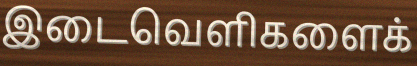
இடைவெளிகளைக்